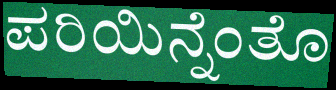
ಪರಿಯಿನ್ನೆಂತೊ